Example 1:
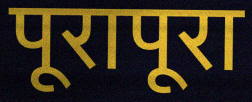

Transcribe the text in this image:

पूरापूरा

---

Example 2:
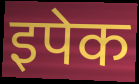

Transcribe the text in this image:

इपेक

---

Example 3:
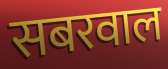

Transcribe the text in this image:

सबरवाल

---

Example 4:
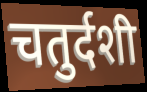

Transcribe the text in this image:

चतुर्दशी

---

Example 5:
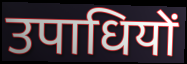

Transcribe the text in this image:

उपाधियों